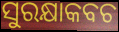
ସୁରକ୍ଷାକବଚ